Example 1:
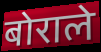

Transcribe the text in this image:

बोराले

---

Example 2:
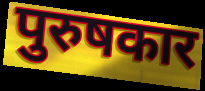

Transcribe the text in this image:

पुरुषकार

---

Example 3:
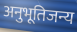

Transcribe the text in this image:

अनुभूतिजन्य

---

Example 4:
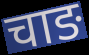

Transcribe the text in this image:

चाङ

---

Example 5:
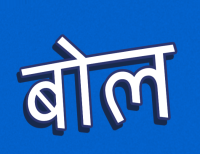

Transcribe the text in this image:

बोल